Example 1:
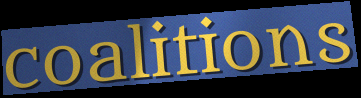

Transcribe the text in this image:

coalitions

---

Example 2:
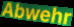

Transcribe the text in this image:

Abwehr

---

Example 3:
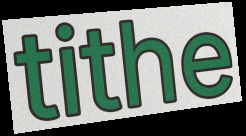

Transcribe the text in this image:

tithe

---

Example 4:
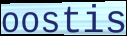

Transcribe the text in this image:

oostis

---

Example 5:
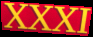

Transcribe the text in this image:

XXXI